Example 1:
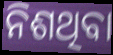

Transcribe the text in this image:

ନିଶଥିବା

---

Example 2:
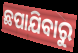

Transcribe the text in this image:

ଛପାଯିବାରୁ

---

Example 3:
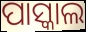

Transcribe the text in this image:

ପାସ୍କାଲ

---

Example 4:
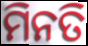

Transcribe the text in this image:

ମିନତି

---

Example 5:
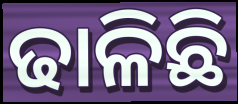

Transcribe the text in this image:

ଢାଳିଛି